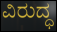
ವಿರುದ್ಧ